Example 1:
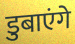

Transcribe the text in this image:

डुबाएंगे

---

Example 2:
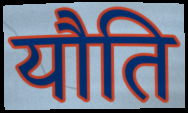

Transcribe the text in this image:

यौति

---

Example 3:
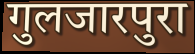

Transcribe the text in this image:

गुलजारपुरा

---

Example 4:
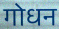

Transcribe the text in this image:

गोधन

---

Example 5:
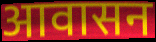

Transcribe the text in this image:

आवासन